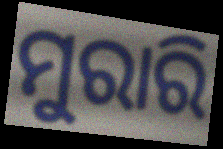
ମୁରାରି